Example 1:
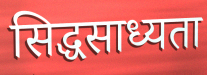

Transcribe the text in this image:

सिद्धसाध्यता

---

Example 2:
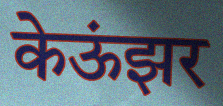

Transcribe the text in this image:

केऊंझर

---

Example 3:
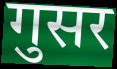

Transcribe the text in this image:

गुसर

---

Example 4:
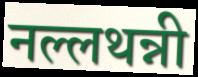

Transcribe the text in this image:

नल्लथन्नी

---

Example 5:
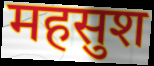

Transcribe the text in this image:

महसुश